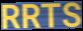
RRTS